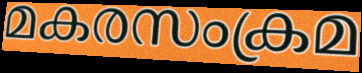
മകരസംക്രമ